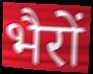
भैरों